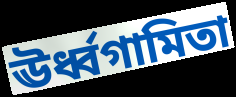
ঊর্ধ্বগামিতা